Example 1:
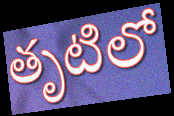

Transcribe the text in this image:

తృటిలో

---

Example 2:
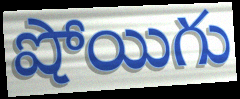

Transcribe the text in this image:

షోయిగు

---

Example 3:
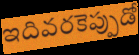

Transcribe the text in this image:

ఇదివరకెప్పుడో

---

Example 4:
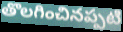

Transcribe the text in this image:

తొలగించినప్పటి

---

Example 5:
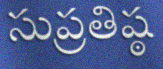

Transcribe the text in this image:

సుప్రతిష్ఠ